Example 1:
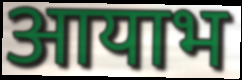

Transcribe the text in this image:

आयाभ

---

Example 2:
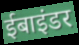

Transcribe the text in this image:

ईबाइंडर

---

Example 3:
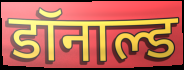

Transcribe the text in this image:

डॉनाल्ड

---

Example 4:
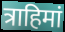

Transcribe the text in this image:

त्राहिमां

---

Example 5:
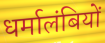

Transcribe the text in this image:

धर्मालंबियों